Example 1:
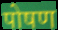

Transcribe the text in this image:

पोषण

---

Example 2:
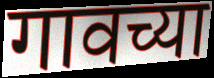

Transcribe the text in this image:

गावच्या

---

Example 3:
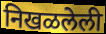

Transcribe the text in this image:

निखळलेली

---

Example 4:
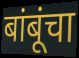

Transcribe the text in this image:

बांबूंचा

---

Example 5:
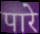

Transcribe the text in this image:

पारे